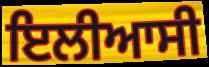
ਇਲੀਆਸੀ